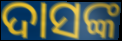
ଦାସଙ୍କ